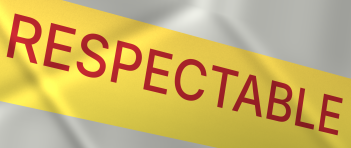
RESPECTABLE